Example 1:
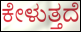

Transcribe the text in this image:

ಕೇಳುತ್ತದೆ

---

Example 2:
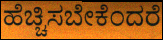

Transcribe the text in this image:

ಹೆಚ್ಚಿಸಬೇಕೆಂದರೆ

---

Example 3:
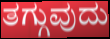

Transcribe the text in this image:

ತಗ್ಗುವುದು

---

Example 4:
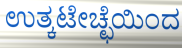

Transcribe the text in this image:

ಉತ್ಕಟೇಚ್ಛೆಯಿಂದ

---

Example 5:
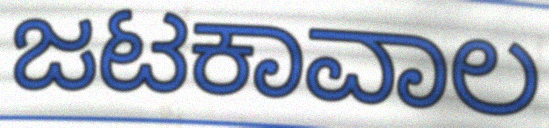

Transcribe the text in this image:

ಜಟಕಾವಾಲ